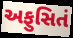
અફુસિતં